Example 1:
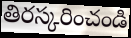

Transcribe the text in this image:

తిరస్కరించండి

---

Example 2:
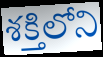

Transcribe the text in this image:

శక్తిలోని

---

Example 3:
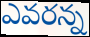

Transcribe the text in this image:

ఎవరన్న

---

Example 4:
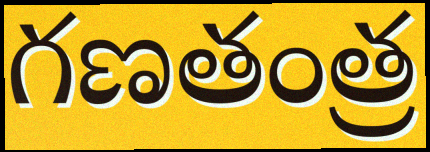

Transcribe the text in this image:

గణతంత్ర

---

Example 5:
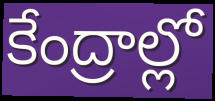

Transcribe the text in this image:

కేంద్రాల్లో